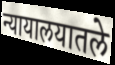
न्यायालयातले